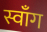
स्वाँग